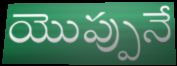
యొప్పునే